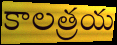
కాలత్రయ